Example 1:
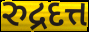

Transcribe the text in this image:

રુદ્રદત્ત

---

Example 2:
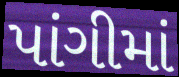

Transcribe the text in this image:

પાંગીમાં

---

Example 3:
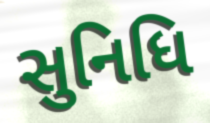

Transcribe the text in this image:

સુનિધિ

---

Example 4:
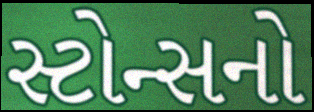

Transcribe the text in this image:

સ્ટોન્સનો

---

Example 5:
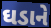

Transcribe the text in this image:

ઘડાને